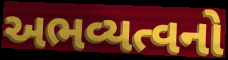
અભવ્યત્વનો